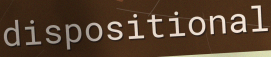
dispositional